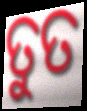
ତୁତ